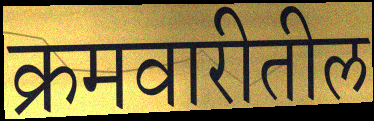
क्रमवारीतील